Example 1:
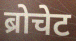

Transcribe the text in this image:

ब्रोचेट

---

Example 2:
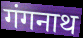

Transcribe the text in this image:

गंगनाथ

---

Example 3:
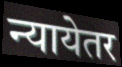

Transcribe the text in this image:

न्यायेतर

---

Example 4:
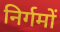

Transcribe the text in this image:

निर्गमों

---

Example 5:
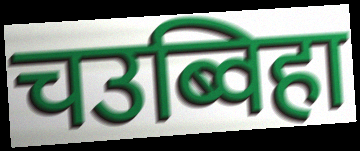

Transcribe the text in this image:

चउब्विहा